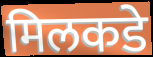
मिलकडे